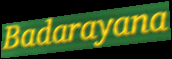
Badarayana